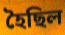
হৈছিল